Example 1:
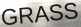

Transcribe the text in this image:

GRASS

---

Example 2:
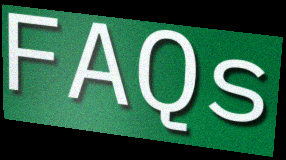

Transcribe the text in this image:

FAQs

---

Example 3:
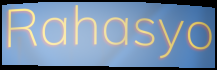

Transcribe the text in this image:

Rahasyo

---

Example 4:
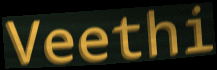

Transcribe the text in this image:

Veethi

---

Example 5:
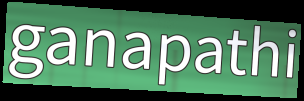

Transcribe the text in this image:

ganapathi